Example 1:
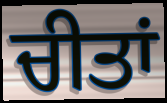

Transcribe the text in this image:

ਚੀਤਾਂ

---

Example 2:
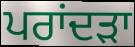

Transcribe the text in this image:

ਪਰਾਂਦੜਾ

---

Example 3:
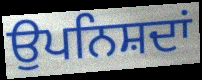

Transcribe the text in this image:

ਉਪਨਿਸ਼ਦਾਂ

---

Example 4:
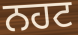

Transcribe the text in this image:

ਨਹਟ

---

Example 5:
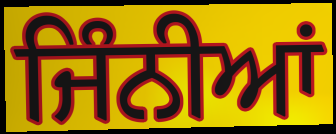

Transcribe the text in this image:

ਜਿੰਨੀਆਂ